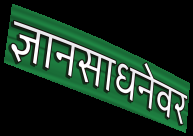
ज्ञानसाधनेवर